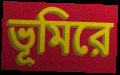
ভূমিরে